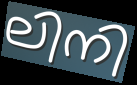
ലിനി